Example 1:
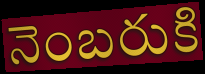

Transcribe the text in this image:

నెంబరుకి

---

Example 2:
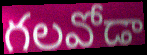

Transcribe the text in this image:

గలవోడా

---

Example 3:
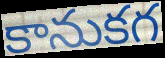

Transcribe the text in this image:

కానుకగ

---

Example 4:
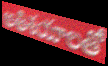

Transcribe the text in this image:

అతిశయాలతో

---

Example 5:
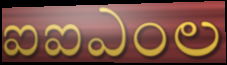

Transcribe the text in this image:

ఐఐఎంల